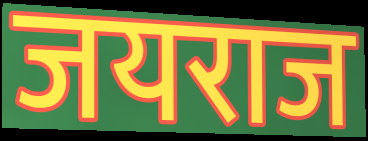
जयराज